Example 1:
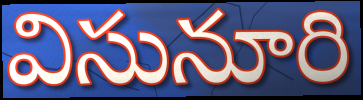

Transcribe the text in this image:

విసునూరి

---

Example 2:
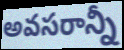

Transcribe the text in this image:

అవసరాన్నీ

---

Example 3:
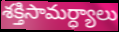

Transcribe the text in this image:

శక్తిసామర్ధ్యాలు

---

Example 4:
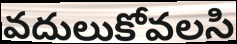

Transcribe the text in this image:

వదులుకోవలసి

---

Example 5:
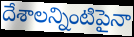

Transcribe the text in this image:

దేశాలన్నింటిపైనా